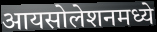
आयसोलेशनमध्ये